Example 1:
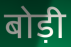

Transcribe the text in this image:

बोड़ी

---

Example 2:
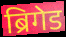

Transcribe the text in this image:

ब्रिगेड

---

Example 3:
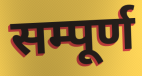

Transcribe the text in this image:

सम्पूर्ण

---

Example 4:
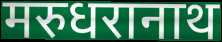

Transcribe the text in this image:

मरुधरानाथ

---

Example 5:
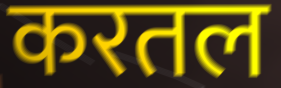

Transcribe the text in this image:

करतल